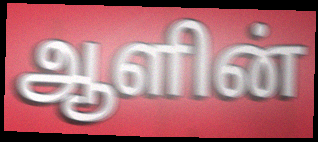
ஆளின்